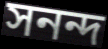
সনন্দ